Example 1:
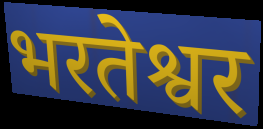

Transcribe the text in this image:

भरतेश्वर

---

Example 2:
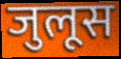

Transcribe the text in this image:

जुलूस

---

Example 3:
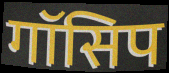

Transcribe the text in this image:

गॉसिप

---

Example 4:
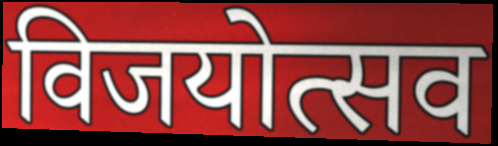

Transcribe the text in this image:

विजयोत्सव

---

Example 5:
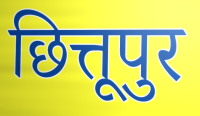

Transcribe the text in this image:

छित्तूपुर